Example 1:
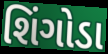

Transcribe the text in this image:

શિંગોડા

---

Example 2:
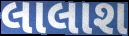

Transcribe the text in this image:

લાલાશ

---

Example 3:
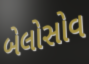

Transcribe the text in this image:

બેલોસોવ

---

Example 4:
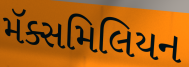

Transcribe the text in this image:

મૅક્સમિલિયન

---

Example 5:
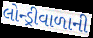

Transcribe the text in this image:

લોન્ડ્રીવાળાની